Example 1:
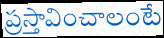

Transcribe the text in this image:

ప్రస్తావించాలంటే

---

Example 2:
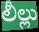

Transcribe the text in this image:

లీల్లు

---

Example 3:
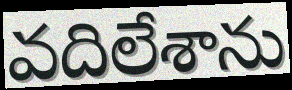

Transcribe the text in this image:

వదిలేశాను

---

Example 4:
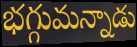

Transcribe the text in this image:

భగ్గుమన్నాడు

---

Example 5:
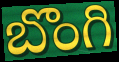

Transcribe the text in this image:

బొంగి